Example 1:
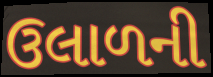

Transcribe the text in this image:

ઉલાળની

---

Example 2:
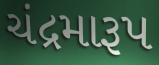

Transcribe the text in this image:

ચંદ્રમારૂપ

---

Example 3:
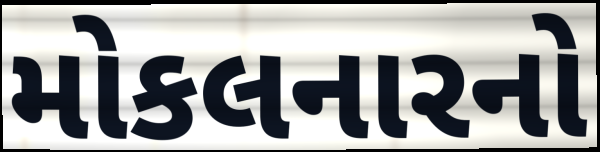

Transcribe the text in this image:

મોકલનારનો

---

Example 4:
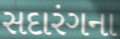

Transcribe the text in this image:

સદારંગના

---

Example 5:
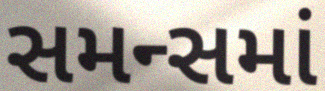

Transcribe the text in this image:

સમન્સમાં